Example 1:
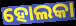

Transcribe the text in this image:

ହୋଲକା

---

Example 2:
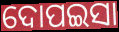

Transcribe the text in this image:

ଦୋପଇସା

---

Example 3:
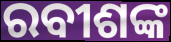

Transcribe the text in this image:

ରବୀଶଙ୍କ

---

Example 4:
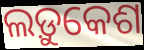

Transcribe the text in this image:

ଲଡ଼ୁକେଶ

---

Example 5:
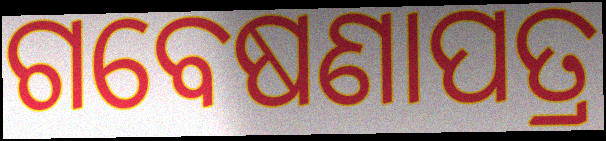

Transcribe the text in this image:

ଗବେଷଣାପତ୍ର